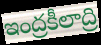
ఇంద్రకీలాద్రి